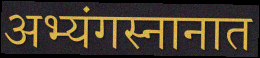
अभ्यंगस्नानात